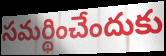
సమర్థించేందుకు